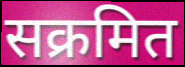
सक्रमित